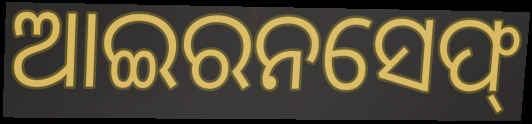
ଆଇରନସେଫ୍